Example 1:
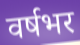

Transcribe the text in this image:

वर्षभर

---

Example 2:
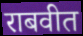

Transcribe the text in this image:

राबवीत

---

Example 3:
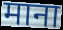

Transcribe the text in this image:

माना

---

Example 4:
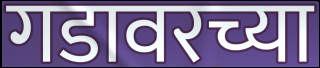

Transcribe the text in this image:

गडावरच्या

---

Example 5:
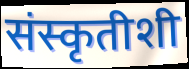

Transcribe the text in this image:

संस्कृतीशी